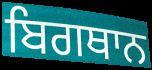
ਬਿਗਥਾਨ